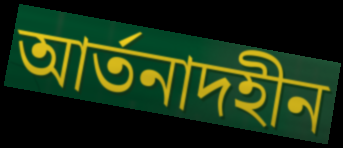
আর্তনাদহীন